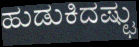
ಹುಡುಕಿದಷ್ಟು